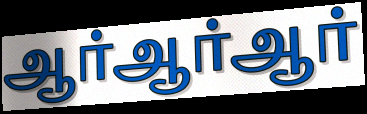
ஆர்ஆர்ஆர்